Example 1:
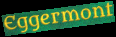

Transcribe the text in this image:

Eggermont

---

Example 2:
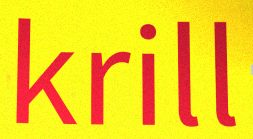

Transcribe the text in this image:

krill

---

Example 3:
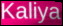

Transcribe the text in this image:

Kaliya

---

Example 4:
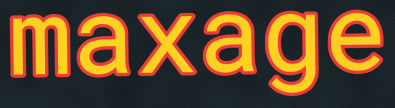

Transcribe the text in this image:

maxage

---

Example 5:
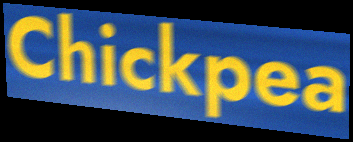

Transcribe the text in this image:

Chickpea